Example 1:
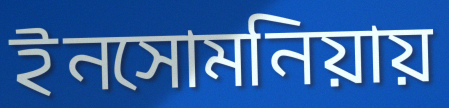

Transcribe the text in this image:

ইনসোমনিয়ায়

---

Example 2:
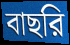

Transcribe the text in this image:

বাছরি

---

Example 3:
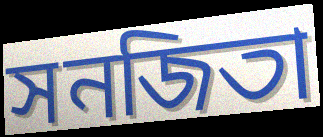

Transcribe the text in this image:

সনজিতা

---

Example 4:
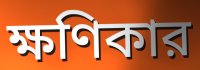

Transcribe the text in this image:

ক্ষণিকার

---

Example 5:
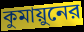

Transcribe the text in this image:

কুমায়ুনের